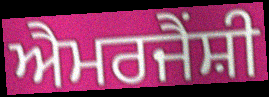
ਐਮਰਜੈਂਸ਼ੀ